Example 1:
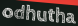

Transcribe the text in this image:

odhutha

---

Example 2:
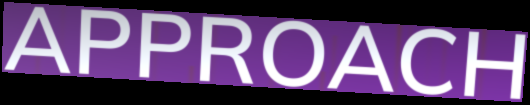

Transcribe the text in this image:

APPROACH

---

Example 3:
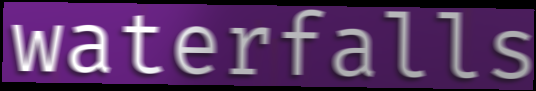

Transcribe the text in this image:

waterfalls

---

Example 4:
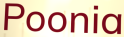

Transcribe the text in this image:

Poonia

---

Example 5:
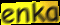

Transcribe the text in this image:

enka